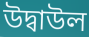
উদ্বাউল